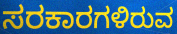
ಸರಕಾರಗಳಿರುವ